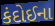
કંદોઈના